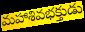
మహాశివభక్తుడు